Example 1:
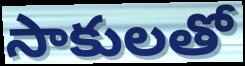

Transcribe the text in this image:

సాకులతో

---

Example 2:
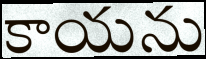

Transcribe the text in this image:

కాయను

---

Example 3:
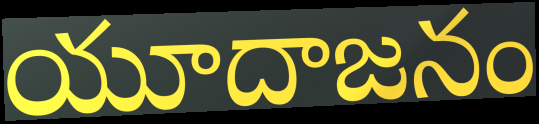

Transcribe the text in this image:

యూదాజనం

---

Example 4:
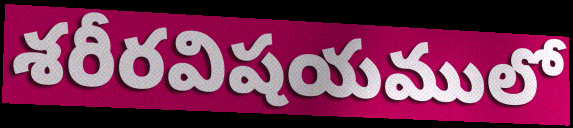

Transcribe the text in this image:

శరీరవిషయములో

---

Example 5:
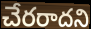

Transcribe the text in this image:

చేరరాదని